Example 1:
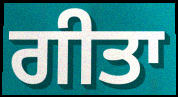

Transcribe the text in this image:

ਗੀਤਾ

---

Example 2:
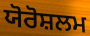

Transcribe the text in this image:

ਯੋਰੋਸ਼ਲਮ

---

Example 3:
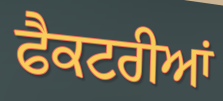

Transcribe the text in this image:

ਫੈਕਟਰੀਆਂ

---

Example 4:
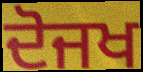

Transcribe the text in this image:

ਦੋਜਖ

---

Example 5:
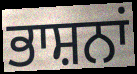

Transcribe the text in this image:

ਭਾਸ਼ਨਾਂ